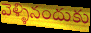
వెళ్ళినందుకు